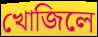
খোজিলে